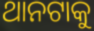
ଥାନଟାକୁ